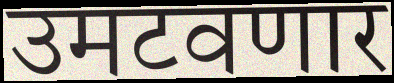
उमटवणार